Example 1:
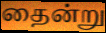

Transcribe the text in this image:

தைன்று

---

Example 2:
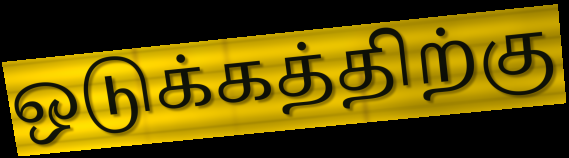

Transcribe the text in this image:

ஒடுக்கத்திற்கு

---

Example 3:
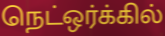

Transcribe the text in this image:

நெட்ஒர்க்கில்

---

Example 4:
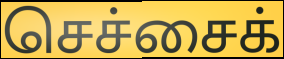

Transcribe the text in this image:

செச்சைக்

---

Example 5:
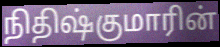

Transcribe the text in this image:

நிதிஷ்குமாரின்